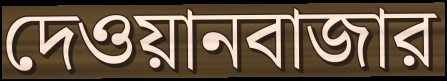
দেওয়ানবাজার